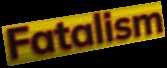
Fatalism